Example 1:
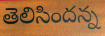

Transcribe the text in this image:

తెలిసిందన్న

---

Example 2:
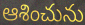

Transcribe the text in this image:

ఆశించును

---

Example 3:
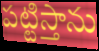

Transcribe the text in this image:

పట్టిస్తాను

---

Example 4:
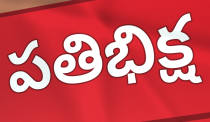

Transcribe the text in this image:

పతిభిక్ష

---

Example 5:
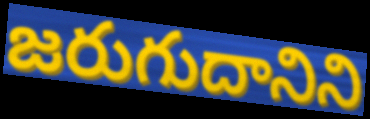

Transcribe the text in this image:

జరుగుదానిని